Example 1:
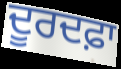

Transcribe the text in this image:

ਦੂਰਦਫ਼ਾ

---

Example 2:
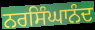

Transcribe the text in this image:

ਨਰਸਿੰਘਾਨੰਦ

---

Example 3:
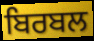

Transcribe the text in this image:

ਬਿਰਬਲ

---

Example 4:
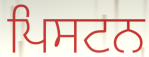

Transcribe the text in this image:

ਪਿਸਟਨ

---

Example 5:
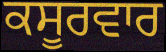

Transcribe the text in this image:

ਕਸੂਰਵਾਰ